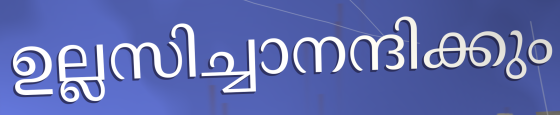
ഉല്ലസിച്ചാനന്ദിക്കും